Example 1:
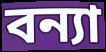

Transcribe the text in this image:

বন্যা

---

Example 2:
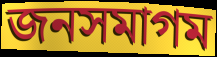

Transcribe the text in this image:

জনসমাগম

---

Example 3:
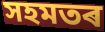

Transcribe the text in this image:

সহমতৰ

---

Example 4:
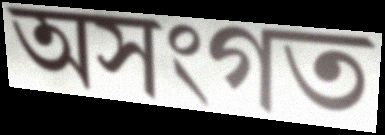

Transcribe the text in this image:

অসংগত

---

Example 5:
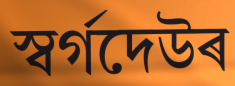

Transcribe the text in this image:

স্বৰ্গদেউৰ